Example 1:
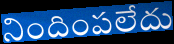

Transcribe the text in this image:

నిందింపలేదు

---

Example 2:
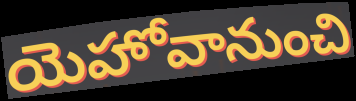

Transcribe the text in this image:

యెహోవానుంచి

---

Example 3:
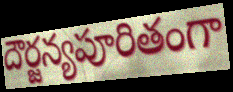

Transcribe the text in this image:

దౌర్జన్యపూరితంగా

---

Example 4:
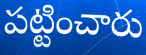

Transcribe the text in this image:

పట్టించారు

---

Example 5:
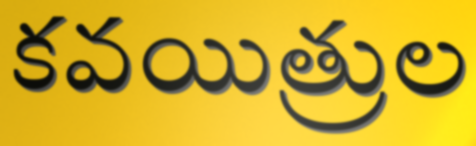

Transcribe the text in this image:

కవయిత్రుల